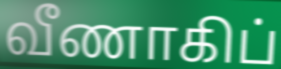
வீணாகிப்